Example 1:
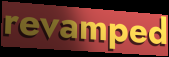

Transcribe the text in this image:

revamped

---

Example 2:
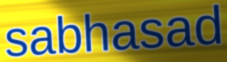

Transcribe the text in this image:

sabhasad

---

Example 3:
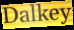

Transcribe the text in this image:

Dalkey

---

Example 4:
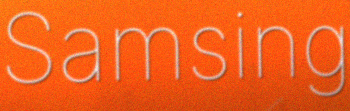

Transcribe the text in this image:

Samsing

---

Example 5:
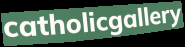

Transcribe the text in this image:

catholicgallery